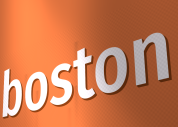
boston